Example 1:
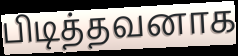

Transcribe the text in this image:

பிடித்தவனாக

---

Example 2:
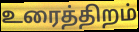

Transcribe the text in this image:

உரைத்திறம்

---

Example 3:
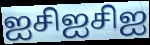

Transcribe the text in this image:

ஐசிஐசிஐ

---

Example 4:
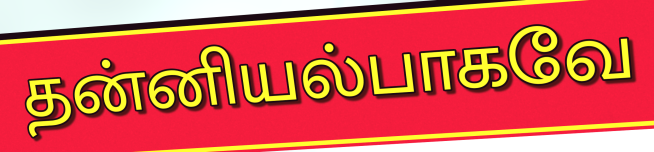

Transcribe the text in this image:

தன்னியல்பாகவே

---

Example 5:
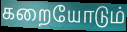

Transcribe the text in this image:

கறையோடும்